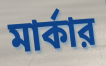
মার্কার